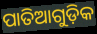
ପାତିଆଗୁଡ଼ିକ